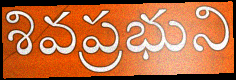
శివప్రభుని